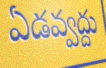
ఏడవ్వద్దు